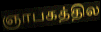
ஞாபகத்தில